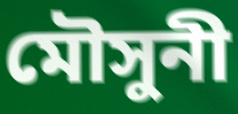
মৌসুনী